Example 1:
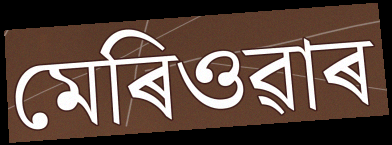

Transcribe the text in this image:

মেৰিওৱাৰ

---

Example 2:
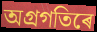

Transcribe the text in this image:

অগ্ৰগতিৰে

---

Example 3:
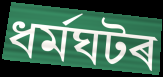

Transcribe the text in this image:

ধৰ্মঘটৰ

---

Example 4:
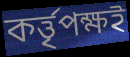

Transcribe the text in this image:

কৰ্ত্তৃপক্ষই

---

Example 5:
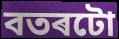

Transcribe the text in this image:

বতৰটো